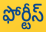
ఫోర్టీస్